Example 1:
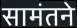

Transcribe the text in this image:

सामंतने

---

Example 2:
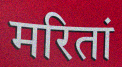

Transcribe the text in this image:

मरितां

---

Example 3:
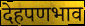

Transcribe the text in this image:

देहपणभाव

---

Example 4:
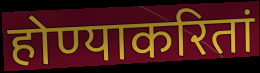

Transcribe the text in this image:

होण्याकरितां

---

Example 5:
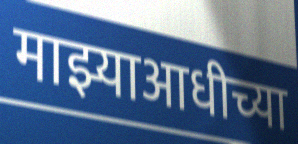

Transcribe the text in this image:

माझ्याआधीच्या